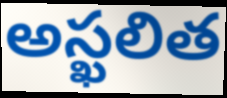
అస్ఖలిత